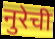
नुरेची